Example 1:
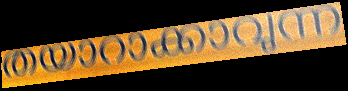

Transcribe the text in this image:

തയാറാക്കാവുന്ന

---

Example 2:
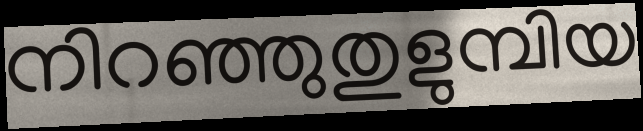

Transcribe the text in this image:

നിറഞ്ഞുതുളുമ്പിയ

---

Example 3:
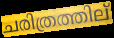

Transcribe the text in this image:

ചരിത്രത്തില്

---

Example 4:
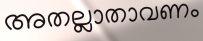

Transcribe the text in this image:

അതല്ലാതാവണം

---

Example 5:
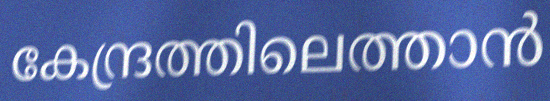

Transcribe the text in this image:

കേന്ദ്രത്തിലെത്താൻ